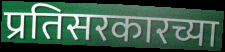
प्रतिसरकारच्या